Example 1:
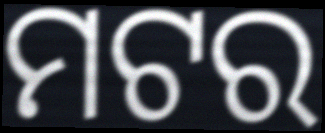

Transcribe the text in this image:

ମଟର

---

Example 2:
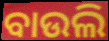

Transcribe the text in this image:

ବାଉଲି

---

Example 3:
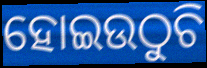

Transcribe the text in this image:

ହୋଇଉଠୁଚି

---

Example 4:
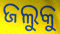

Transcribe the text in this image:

ଜଲୁକୁ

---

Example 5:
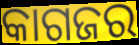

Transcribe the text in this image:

କାଗଜର